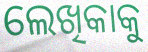
ଲେଖିକାକୁ